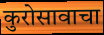
कुरोसावाचा